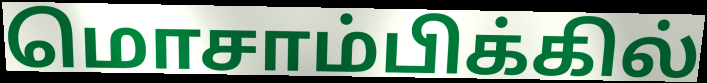
மொசாம்பிக்கில்